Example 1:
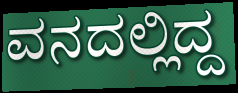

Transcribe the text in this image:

ವನದಲ್ಲಿದ್ದ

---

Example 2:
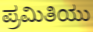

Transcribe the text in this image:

ಪ್ರಮಿತಿಯು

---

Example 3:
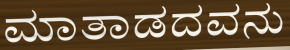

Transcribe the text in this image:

ಮಾತಾಡದವನು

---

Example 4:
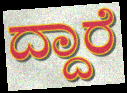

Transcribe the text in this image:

ದ್ದಾರೆ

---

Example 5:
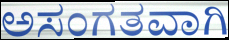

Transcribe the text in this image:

ಅಸಂಗತವಾಗಿ